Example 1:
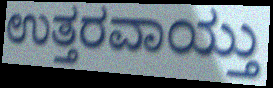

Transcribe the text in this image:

ಉತ್ತರವಾಯ್ತು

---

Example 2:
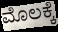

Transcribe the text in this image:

ಮೊಲಕ್ಕೆ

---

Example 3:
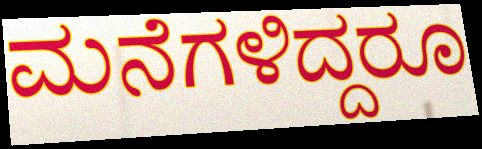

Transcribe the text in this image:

ಮನೆಗಳಿದ್ದರೂ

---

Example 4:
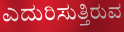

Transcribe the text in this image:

ಎದುರಿಸುತ್ತಿರುವ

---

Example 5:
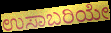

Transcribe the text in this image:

ಉಸಾಬರಿಯೇ